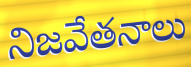
నిజవేతనాలు